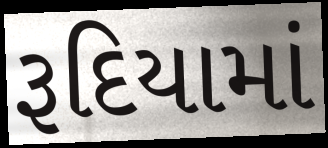
રૂદિયામાં